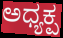
ಅಧ್ಯಕ್ಪ